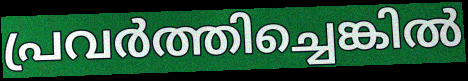
പ്രവർത്തിച്ചെങ്കിൽ